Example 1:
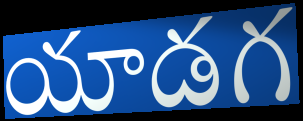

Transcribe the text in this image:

యాడగ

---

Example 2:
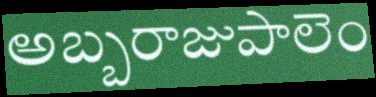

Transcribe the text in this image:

అబ్బరాజుపాలెం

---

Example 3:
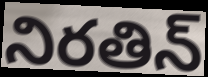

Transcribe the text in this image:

నిరతిన్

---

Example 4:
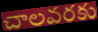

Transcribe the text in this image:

చాలవరకు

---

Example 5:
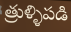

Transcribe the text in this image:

త్రుళ్ళిపడి